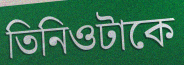
তিনিওটাকে